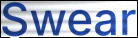
Swear